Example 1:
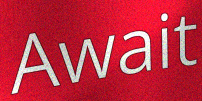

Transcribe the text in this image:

Await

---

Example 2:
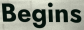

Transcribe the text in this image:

Begins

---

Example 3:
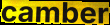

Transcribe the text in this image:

camber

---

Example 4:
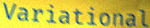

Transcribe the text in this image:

Variational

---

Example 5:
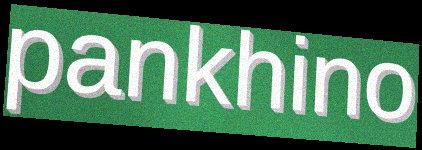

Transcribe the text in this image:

pankhino